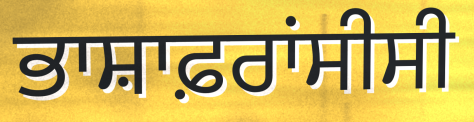
ਭਾਸ਼ਾਫ਼ਰਾਂਸੀਸੀ